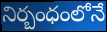
నిర్బంధంలోనే